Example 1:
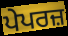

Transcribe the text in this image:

ਪੇਪਰਜ਼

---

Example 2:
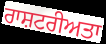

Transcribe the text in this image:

ਰਾਸ਼ਟਰੀਅਤਾ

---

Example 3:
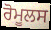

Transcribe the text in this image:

ਰੋਮੂਲਸ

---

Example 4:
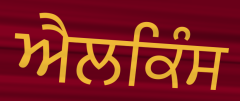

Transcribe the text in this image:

ਐਲਕਿੰਸ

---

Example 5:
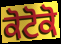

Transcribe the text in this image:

ਕੋਟੋਕੋ